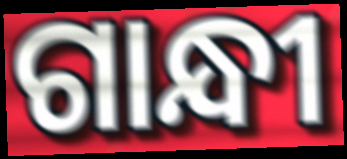
ଗାନ୍ଧୀ